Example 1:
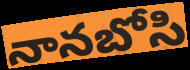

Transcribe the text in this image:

నానబోసి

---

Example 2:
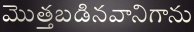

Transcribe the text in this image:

మొత్తబడినవానిగాను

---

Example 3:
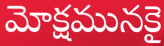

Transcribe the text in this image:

మోక్షమునకై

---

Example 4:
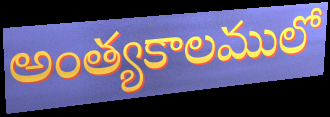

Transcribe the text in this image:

అంత్యకాలములో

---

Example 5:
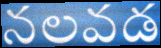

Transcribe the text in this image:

నలవడ